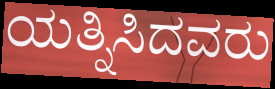
ಯತ್ನಿಸಿದವರು